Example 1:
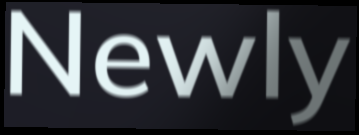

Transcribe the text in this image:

Newly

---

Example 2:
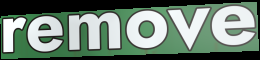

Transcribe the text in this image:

remove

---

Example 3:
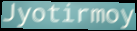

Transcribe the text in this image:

Jyotirmoy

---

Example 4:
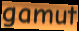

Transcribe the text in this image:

gamut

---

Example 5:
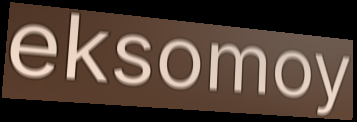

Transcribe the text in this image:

eksomoy